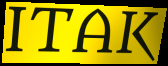
ITAK